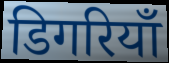
डिगरियाँ